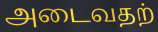
அடைவதற்